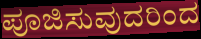
ಪೂಜಿಸುವುದರಿಂದ